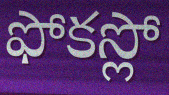
ఫోకస్లో